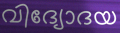
വിദ്യോദയ